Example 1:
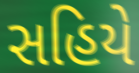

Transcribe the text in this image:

સહિયે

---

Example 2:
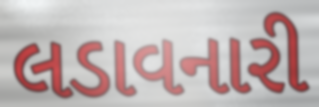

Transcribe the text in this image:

લડાવનારી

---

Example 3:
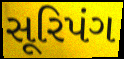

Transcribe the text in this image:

સૂરિપંગ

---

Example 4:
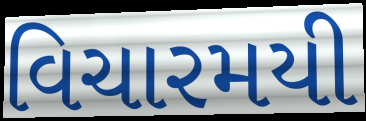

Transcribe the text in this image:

વિચારમયી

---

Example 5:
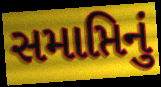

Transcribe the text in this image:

સમાપ્તિનું